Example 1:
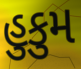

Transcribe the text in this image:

હુકુમ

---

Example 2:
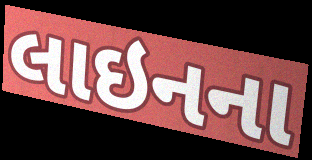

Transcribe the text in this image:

લાઇનના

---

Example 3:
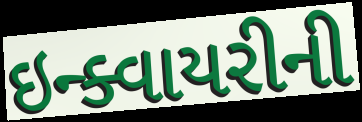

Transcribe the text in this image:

ઇન્ક્વાયરીની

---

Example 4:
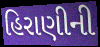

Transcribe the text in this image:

હિરાણીની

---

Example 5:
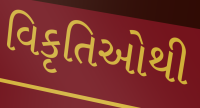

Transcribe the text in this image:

વિકૃતિઓથી